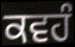
ਕਵਹੰ